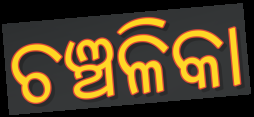
ଚଞ୍ଚଳିକା